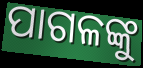
ପାଗଳଙ୍କୁ